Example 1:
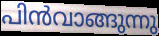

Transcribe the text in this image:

പിൻവാങ്ങുന്നു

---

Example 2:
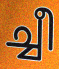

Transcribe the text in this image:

ച്ചീ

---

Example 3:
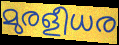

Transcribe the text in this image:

മുരളീധര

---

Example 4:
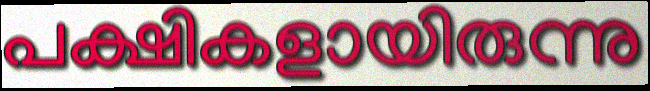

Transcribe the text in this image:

പക്ഷികളായിരുന്നു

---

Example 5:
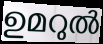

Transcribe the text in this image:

ഉമറുൽ